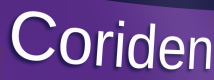
Coriden